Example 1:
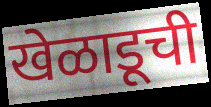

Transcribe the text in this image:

खेळाडूची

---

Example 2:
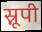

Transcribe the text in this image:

स्नूपी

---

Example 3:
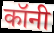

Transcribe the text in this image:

कॉनी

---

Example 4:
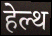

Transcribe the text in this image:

हेल्थ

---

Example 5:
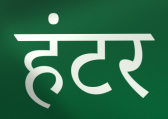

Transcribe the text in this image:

हंटर